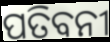
ପତିବନୀ